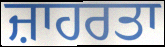
ਜ਼ਾਹਰਤਾ